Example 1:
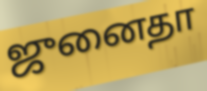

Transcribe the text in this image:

ஜுனைதா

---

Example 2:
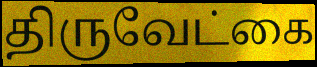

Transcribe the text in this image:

திருவேட்கை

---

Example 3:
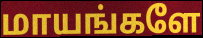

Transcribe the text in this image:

மாயங்களே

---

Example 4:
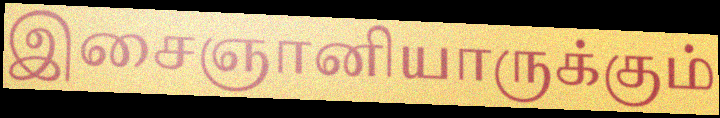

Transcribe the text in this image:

இசைஞானியாருக்கும்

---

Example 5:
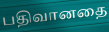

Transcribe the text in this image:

பதிவானதை